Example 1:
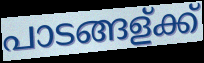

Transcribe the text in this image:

പാടങ്ങള്ക്ക്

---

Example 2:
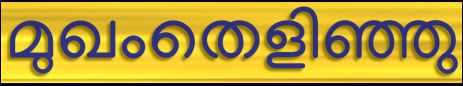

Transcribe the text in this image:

മുഖംതെളിഞ്ഞു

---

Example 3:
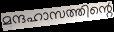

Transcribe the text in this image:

മന്ദഹാസത്തിന്റെ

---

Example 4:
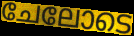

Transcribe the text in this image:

ചേലോടെ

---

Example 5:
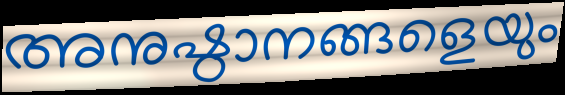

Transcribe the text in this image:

അനുഷ്ഠാനങ്ങളെയും